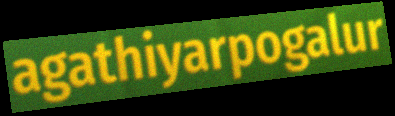
agathiyarpogalur